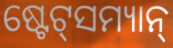
ଷ୍ଟେଟ୍‌ସମ୍ୟାନ୍